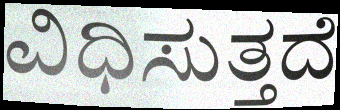
ವಿಧಿಸುತ್ತದೆ